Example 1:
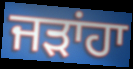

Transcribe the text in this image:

ਜੜਾਂਹਾ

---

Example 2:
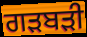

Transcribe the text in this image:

ਗੜਬੜੀ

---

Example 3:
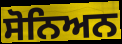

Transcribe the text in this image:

ਸੋਨਿਅਨ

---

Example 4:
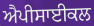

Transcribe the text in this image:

ਐਪੀਸਾਈਕਲ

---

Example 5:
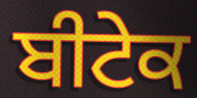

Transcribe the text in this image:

ਬੀਟੇਕ